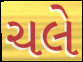
ચલે